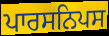
ਪਾਰਸਨਿਪਸ